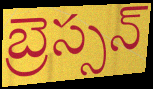
బ్రెస్సన్